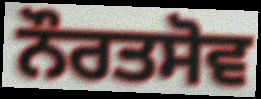
ਨੌਰਤਸੋਵ